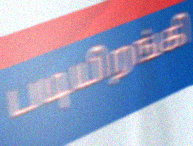
படியிறங்கி